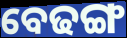
ବେଢଙ୍ଗ